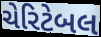
ચેરિટેબલ